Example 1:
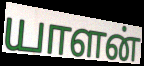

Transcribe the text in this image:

யாளன்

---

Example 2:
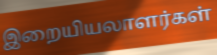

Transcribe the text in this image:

இறையியலாளர்கள்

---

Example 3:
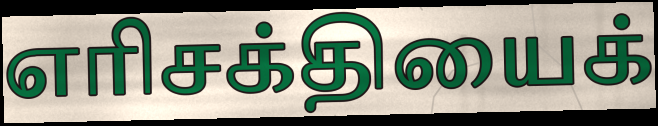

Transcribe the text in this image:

எரிசக்தியைக்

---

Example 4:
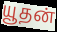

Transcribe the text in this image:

யூதன்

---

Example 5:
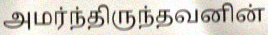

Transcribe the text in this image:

அமர்ந்திருந்தவனின்